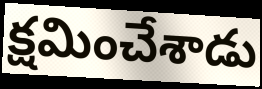
క్షమించేశాడు